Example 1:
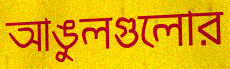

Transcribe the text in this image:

আঙুলগুলোর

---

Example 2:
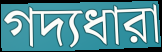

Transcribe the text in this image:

গদ্যধারা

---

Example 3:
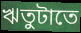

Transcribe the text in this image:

ঋতুটাতে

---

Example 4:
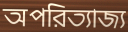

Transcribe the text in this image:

অপরিত্যাজ্য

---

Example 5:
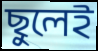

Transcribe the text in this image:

ছুলেই